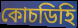
কোচডিহি